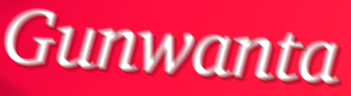
Gunwanta